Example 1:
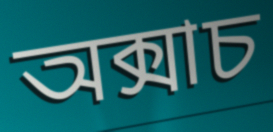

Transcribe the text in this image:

অক্সাচ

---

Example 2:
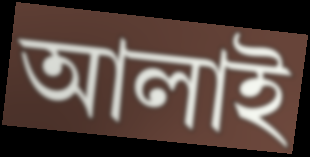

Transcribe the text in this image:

আলাই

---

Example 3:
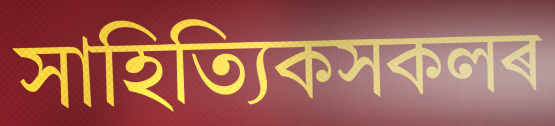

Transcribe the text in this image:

সাহিত্যিকসকলৰ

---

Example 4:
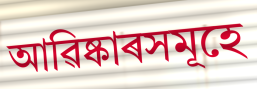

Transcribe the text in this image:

আৱিষ্কাৰসমূহে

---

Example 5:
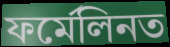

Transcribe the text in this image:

ফৰ্মেলিনত